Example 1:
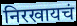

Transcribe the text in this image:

निरखायचं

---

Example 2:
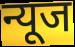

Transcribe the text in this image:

न्यूज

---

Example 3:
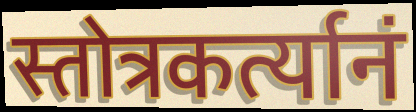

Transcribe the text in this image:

स्तोत्रकर्त्यानं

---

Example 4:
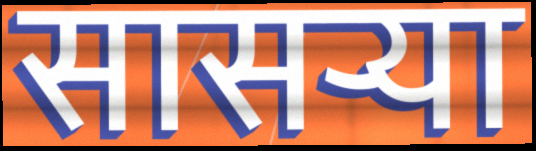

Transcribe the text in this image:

सासर्‍या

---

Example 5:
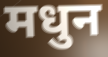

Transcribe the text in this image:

मधुन